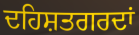
ਦਹਿਸ਼ਤਗਰਦਾਂ